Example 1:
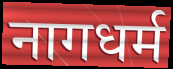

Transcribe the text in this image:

नागधर्म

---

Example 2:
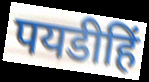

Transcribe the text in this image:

पयडीहिं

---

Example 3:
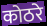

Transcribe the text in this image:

कोठरे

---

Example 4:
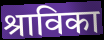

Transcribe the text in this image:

श्राविका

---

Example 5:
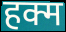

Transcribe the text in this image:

हक्म